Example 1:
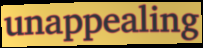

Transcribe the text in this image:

unappealing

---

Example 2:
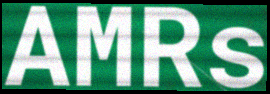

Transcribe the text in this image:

AMRs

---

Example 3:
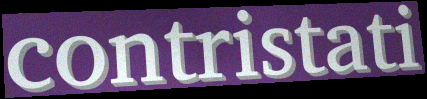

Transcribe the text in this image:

contristati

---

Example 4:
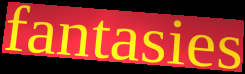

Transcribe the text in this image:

fantasies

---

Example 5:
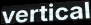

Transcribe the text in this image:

vertical